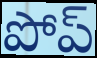
పోప్